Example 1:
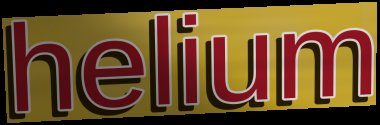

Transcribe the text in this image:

helium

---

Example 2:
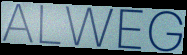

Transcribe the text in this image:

ALWEG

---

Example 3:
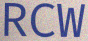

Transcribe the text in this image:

RCW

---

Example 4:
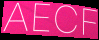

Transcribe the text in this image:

AECF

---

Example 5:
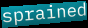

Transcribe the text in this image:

sprained